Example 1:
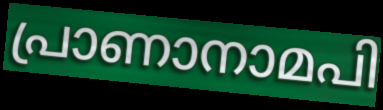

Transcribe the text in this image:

പ്രാണാനാമപി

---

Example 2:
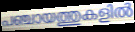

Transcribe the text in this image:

പഞ്ചായത്തുകളിൽ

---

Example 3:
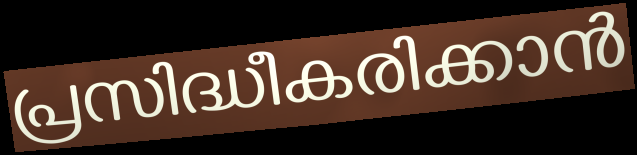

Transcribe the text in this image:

പ്രസിദ്ധീകരിക്കാൻ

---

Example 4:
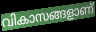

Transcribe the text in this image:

വികാസങ്ങളാണ്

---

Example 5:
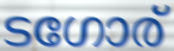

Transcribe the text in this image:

ടഗോര്